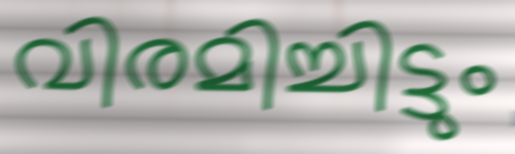
വിരമിച്ചിട്ടും